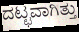
ದಟ್ಟವಾಗಿತ್ತು